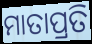
ମାତାପ୍ରତି